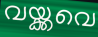
വയ്ക്കവെ